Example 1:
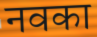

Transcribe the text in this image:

नवका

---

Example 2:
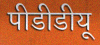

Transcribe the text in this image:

पीडीडीयू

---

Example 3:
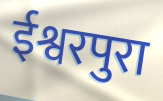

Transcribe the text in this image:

ईश्वरपुरा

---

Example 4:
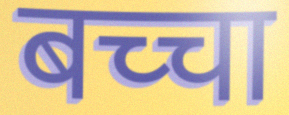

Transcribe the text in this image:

बच्‍चा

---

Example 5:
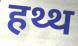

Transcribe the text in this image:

हथ्थ